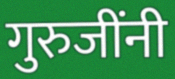
गुरुजींनी